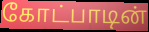
கோட்பாடின்